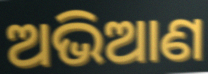
ଅଭିଆଣ